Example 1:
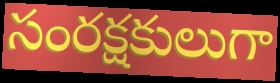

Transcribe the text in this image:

సంరక్షకులుగా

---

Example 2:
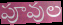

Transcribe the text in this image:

పూవుల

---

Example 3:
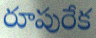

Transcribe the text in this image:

రూపురేక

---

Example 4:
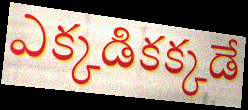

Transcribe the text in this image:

ఎక్కడికక్కడే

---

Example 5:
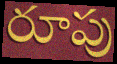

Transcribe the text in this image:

రూపు